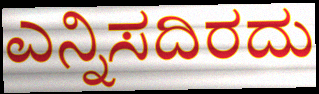
ಎನ್ನಿಸದಿರದು